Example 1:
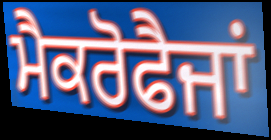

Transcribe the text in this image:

ਮੈਕਰੋਫੈਜਾਂ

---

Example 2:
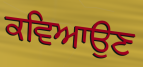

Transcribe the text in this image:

ਕਵਿਆਉਣ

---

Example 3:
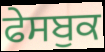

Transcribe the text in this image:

ਫੇਸਬੁਕ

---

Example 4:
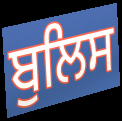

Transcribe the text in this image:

ਬੁਲਿਸ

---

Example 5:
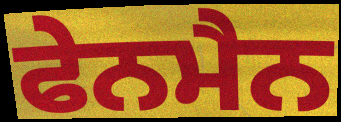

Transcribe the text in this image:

ਫੇਨਮੈਨ